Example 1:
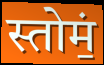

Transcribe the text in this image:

स्तोमं॒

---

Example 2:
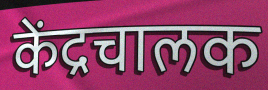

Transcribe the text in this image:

केंद्रचालक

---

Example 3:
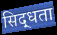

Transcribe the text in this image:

सिद्धता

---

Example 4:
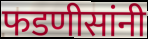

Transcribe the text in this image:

फडणीसांनी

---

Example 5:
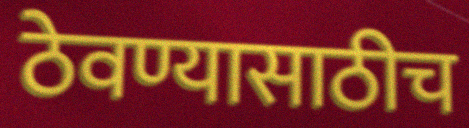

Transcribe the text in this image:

ठेवण्यासाठीच